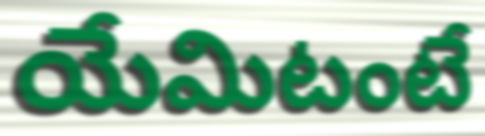
యేమిటంటే